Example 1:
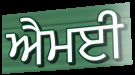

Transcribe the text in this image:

ਐਮਈ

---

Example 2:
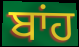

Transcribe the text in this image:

ਬਾਂਹ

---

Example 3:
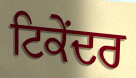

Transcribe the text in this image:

ਟਿਕੇਂਦਰ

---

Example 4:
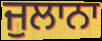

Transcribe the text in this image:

ਜੁਲਾਨਾ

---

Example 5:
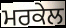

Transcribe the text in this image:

ਮਰਕੇਲ